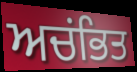
ਅਚਂਭਿਤ